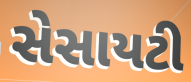
સેસાયટી